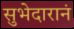
सुभेदारानं